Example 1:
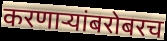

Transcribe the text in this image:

करणाऱ्यांबरोबरच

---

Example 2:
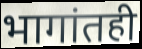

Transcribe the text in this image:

भागांतही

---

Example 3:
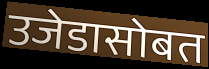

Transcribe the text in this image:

उजेडासोबत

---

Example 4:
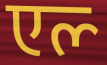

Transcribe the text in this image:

एल्‍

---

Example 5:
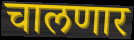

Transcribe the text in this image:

चालणार